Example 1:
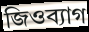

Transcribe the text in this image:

জিওব্যাগ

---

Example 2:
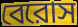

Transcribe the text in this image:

বেরোস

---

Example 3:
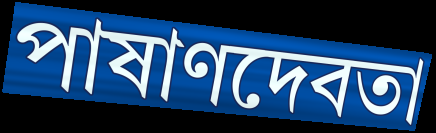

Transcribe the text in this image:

পাষাণদেবতা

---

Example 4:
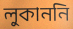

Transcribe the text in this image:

লুকাননি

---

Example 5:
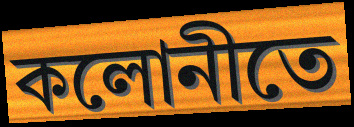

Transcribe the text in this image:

কলোনীতে